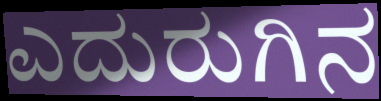
ಎದುರುಗಿನ